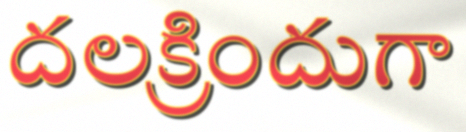
దలక్రిందుగా